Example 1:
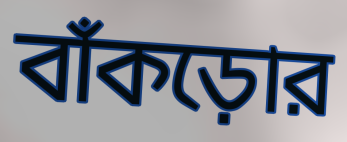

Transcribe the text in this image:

বাঁকড়োর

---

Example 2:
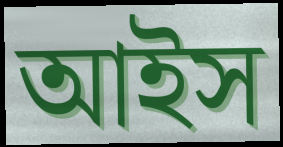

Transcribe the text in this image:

আইস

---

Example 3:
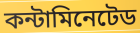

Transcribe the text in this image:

কন্টামিনেটেড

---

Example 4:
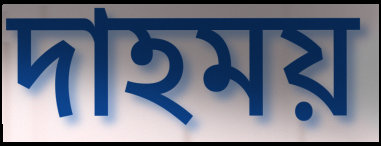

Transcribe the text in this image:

দাহময়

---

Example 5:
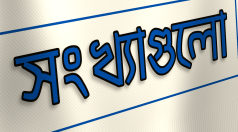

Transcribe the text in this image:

সংখ্যাগুলো